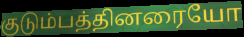
குடும்பத்தினரையோ